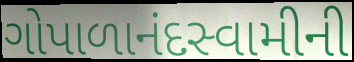
ગોપાળાનંદસ્વામીની